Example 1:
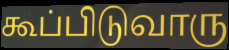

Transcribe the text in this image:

கூப்பிடுவாரு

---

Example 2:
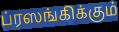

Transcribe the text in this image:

ப்ரஸங்கிக்கும்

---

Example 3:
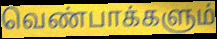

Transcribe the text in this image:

வெண்பாக்களும்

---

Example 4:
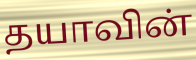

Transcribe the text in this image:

தயாவின்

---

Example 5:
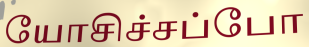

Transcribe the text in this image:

யோசிச்சப்போ